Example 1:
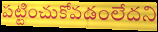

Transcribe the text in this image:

పట్టించుకోవడంలేదని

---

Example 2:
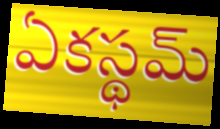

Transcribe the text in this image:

ఏకస్థమ్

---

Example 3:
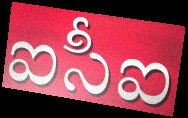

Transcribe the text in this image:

ఐసీఐ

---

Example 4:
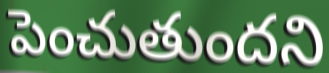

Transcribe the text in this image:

పెంచుతుందని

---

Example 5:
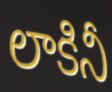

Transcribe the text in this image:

లాకినీ